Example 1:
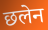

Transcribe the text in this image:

छलेन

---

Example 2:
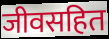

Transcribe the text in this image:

जीवसहित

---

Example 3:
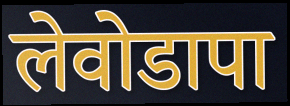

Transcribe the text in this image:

लेवोडापा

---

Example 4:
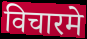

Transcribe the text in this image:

विचारमे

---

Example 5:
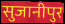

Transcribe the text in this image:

सुजानीपुर